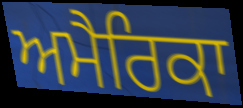
ਅਮੈਰਿਕਾ